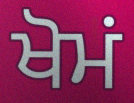
ਖੋਮਂ